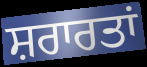
ਸ਼ਰਾਰਤਾਂ